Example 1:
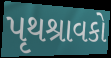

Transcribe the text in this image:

પૃથશ્રાવકો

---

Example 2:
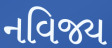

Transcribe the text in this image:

નવિજ્ય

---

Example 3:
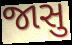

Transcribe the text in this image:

જાસુ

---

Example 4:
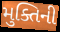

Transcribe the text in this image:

મુક્તિની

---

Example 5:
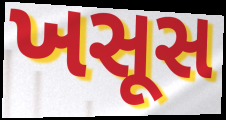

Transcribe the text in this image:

ખસૂસ